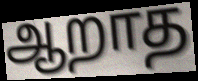
ஆறாத